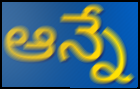
ఆన్నే